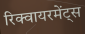
रिक्वायरमेंट्स